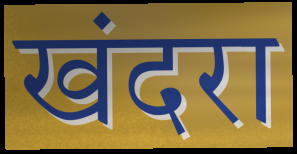
खंदरा